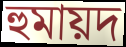
হুমায়দ